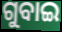
ଗୁବାଇ